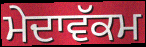
ਮੇਦਾਵੱਕਮ